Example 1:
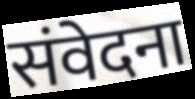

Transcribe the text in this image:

संवेदना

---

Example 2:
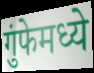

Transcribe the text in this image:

गुंफेमध्ये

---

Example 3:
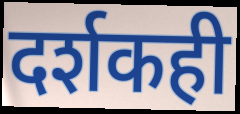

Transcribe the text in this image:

दर्शकही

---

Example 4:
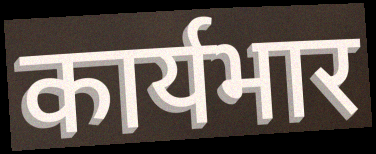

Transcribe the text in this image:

कार्यभार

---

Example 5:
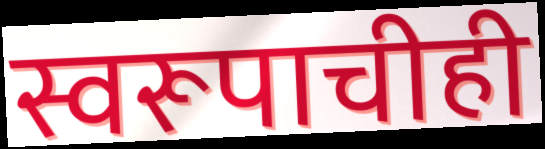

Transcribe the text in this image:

स्वरूपाचीही